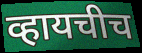
व्हायचीच